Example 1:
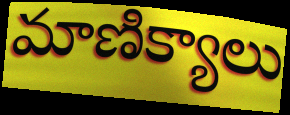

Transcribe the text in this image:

మాణిక్యాలు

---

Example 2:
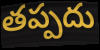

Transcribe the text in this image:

తప్పదు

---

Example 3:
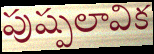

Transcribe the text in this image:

పుష్పలావిక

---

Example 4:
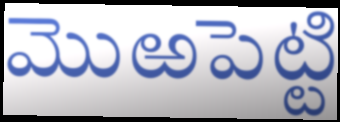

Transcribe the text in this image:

మొఱపెట్టి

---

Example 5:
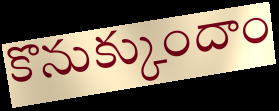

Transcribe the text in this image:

కొనుక్కుందాం